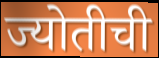
ज्योतीची